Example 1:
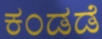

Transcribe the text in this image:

ಕಂಡಡೆ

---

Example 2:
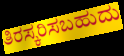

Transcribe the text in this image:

ತಿರಸ್ಕರಿಸಬಹುದು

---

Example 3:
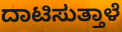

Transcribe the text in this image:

ದಾಟಿಸುತ್ತಾಳೆ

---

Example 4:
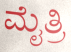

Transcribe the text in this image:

ಮೈತ್ರಿ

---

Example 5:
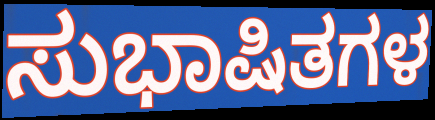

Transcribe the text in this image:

ಸುಭಾಷಿತಗಳ